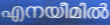
എനയീമിൽ